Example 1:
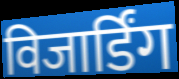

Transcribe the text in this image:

विजार्डिंग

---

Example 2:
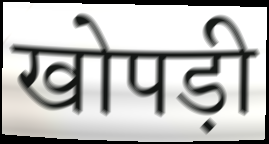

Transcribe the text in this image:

खोपड़ी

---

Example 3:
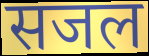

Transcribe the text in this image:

सजल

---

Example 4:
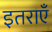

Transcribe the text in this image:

इतराएँ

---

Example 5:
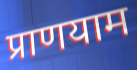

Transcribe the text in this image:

प्राणयाम